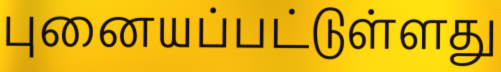
புனையப்பட்டுள்ளது